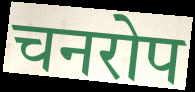
चनरोप